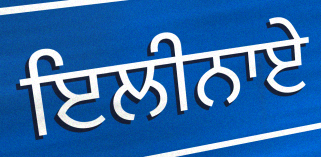
ਇਲੀਨਾਏ